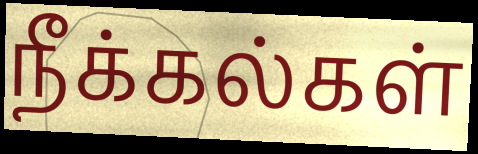
நீக்கல்கள்